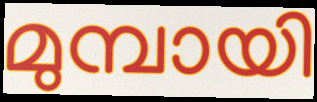
മുമ്പായി